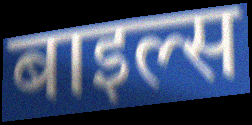
बाइल्स